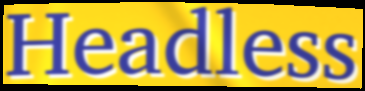
Headless